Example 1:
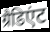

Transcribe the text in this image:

ग्रैडिएंट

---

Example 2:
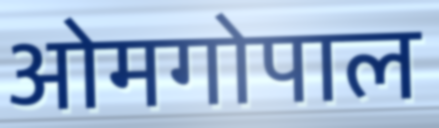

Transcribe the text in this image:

ओमगोपाल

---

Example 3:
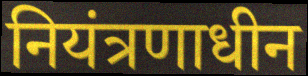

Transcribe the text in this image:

नियंत्रणाधीन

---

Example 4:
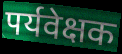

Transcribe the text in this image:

पर्यवेक्षक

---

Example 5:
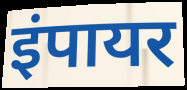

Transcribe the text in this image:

इंपायर